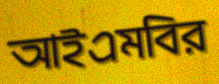
আইএমবির